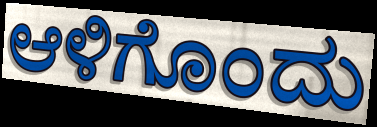
ಆಳಿಗೊಂದು